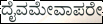
ದೈವಮೇವಾಪರೇ